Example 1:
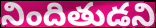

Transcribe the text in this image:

నిందితుడని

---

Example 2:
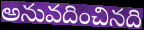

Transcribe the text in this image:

అనువదించినది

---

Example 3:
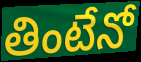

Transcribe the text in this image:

తింటేనో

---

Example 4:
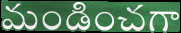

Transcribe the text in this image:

మండించగా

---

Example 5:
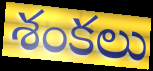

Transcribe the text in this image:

శంకలు